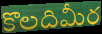
కొలదిమీర